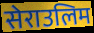
सेराउलिम